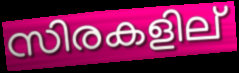
സിരകളില്